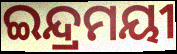
ଇନ୍ଦ୍ରମୟୀ